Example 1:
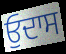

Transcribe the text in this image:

ਓੁਦਾਸ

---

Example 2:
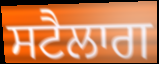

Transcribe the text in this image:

ਸਟੈਲਾਗ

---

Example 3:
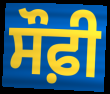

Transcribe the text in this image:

ਸੌਫ਼ੀ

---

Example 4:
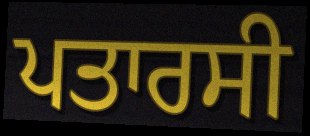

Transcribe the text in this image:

ਪਤਾਰਸੀ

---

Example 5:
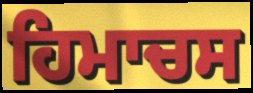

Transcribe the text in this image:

ਹਿਮਾਚਸ